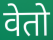
वेतो